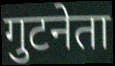
गुटनेता